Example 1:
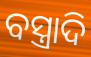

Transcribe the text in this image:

ବସ୍ତ୍ରାଦି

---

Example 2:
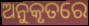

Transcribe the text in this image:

ଅନୁକୃତରେ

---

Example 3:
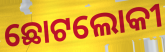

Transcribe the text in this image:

ଛୋଟଲୋକୀ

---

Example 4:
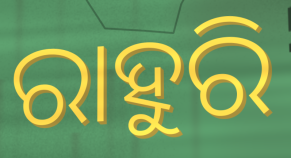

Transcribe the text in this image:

ରାହୁରି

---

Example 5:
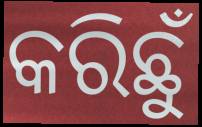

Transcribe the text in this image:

କରିଛୁଁ